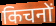
किचनों